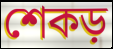
শেকড়